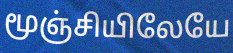
மூஞ்சியிலேயே